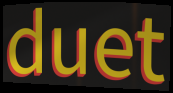
duet